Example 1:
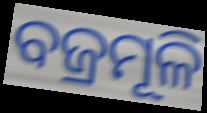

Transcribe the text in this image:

ବଜ୍ରମୂଳି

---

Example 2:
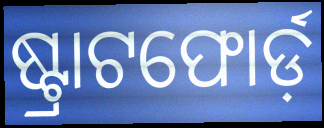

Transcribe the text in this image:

ଷ୍ଟ୍ରାଟଫୋର୍ଡ଼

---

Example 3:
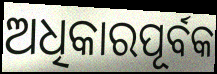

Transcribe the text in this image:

ଅଧିକାରପୂର୍ବକ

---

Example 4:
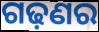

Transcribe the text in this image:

ଗଢ଼ଣର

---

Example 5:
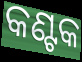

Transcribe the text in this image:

କଣ୍ଟକ